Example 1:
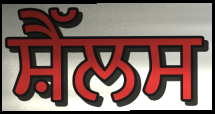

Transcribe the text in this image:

ਸ਼ੈੱਲਸ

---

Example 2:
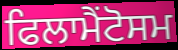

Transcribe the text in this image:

ਫਿਲਾਮੈਂਟੋਸਮ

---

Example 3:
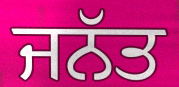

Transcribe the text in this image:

ਜਨੱਤ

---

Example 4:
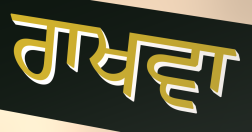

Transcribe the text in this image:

ਰਾਖਵਾ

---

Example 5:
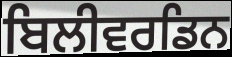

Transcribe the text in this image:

ਬਿਲੀਵਰਡਿਨ